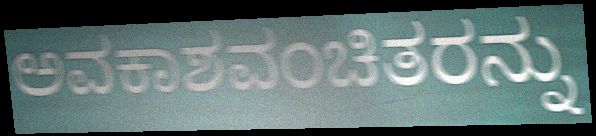
ಅವಕಾಶವಂಚಿತರನ್ನು